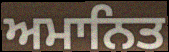
ਅਮਾਨਿਤ